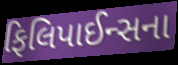
ફિલિપાઈન્સના